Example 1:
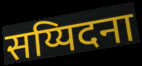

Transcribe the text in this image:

सय्यिदना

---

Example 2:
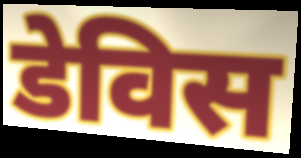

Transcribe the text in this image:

डेविस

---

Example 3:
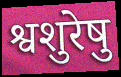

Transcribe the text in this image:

श्वशुरेषु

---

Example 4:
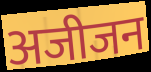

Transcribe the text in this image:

अजीजन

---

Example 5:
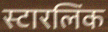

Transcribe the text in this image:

स्टारलिंक